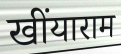
खींयाराम